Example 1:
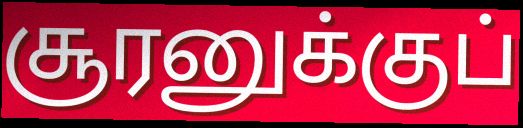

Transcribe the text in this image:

சூரனுக்குப்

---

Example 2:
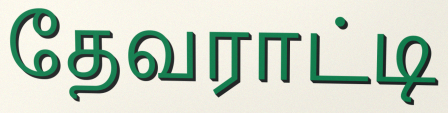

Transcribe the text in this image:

தேவராட்டி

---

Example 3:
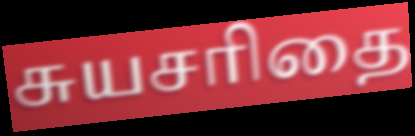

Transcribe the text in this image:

சுயசரிதை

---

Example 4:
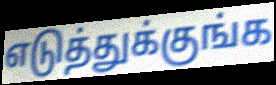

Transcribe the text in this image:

எடுத்துக்குங்க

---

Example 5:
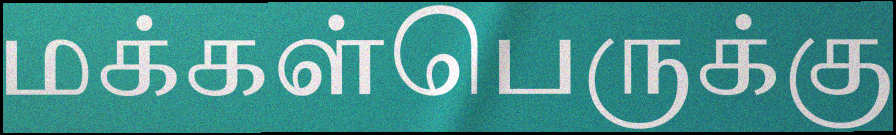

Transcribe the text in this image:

மக்கள்பெருக்கு